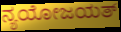
ನ್ಯಯೋಜಯತ್